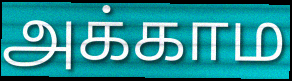
அக்காம